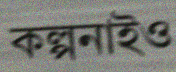
কল্পনাইও